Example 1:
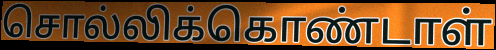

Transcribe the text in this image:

சொல்லிக்கொண்டாள்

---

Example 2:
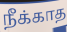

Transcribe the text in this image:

நீக்காத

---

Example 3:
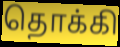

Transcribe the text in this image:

தொக்கி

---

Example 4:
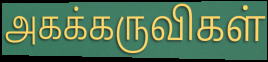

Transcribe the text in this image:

அகக்கருவிகள்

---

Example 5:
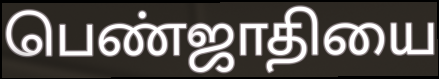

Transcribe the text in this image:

பெண்ஜாதியை